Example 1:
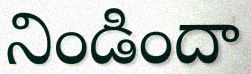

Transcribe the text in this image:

నిండిందా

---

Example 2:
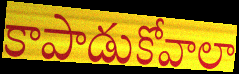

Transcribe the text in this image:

కాపాడుకోవాలా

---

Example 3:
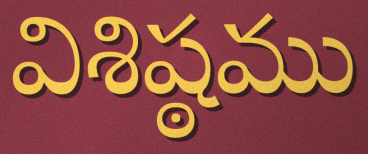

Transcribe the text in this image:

విశిష్ఠము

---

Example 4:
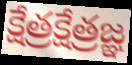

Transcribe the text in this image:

క్షేత్రక్షేత్రజ్ఞ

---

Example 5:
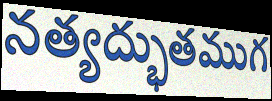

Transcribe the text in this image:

నత్యద్భుతముగ